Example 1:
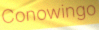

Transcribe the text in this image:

Conowingo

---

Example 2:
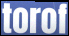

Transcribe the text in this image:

torof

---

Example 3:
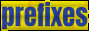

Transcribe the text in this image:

prefixes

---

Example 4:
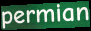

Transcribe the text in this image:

permian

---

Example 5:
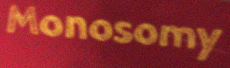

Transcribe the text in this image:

Monosomy